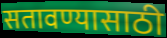
सतावण्यासाठी